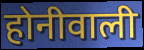
होनीवाली